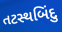
તટસ્થબિંદુ